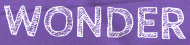
WONDER